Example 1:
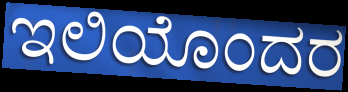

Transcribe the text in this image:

ಇಲಿಯೊಂದರ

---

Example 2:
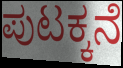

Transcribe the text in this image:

ಪುಟಕ್ಕನೆ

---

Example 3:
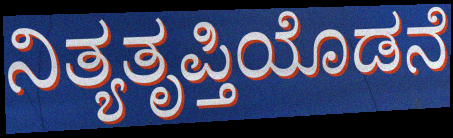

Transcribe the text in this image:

ನಿತ್ಯತೃಪ್ತಿಯೊಡನೆ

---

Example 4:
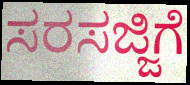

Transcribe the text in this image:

ಸರಸಜ್ಜಿಗೆ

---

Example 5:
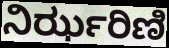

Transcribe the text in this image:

ನಿರ್ಝರಿಣಿ